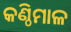
କଣ୍ଠିମାଳ